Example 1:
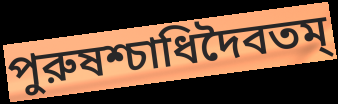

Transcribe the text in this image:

পুরুষশ্চাধিদৈবতম্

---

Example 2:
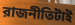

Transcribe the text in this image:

রাজনীতিটাই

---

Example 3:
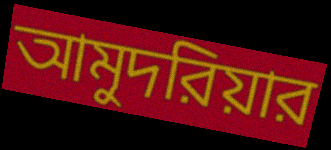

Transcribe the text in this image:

আমুদরিয়ার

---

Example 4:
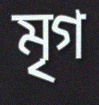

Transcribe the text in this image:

মৃগ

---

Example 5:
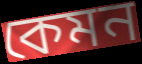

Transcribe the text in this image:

কেমন